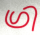
ഗ്രി